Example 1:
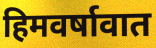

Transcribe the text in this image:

हिमवर्षावात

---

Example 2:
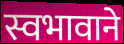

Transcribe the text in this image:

स्वभावाने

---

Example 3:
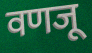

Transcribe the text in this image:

वणजू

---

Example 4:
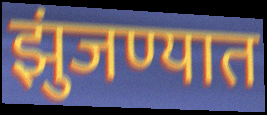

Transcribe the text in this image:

झुंजण्यात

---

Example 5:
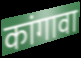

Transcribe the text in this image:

कांगावा